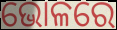
ଭୋଳରେ